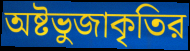
অষ্টভুজাকৃতির